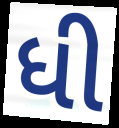
ધી